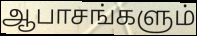
ஆபாசங்களும்